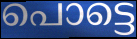
പൊട്ടെ